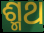
ଶ୍ମଥ